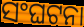
ସଂଘଟନା